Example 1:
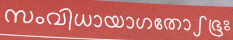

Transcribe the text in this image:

സംവിധായാഗതോഽഭൂഃ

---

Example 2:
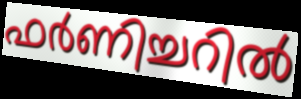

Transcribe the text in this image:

ഫർണിച്ചറിൽ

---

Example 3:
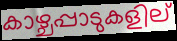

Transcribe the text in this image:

കാഴ്ചപ്പാടുകളില്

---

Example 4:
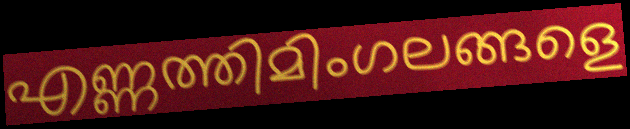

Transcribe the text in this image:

എണ്ണത്തിമിംഗലങ്ങളെ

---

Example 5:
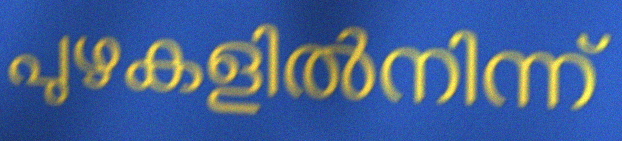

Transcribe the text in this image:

പുഴകളിൽനിന്ന്